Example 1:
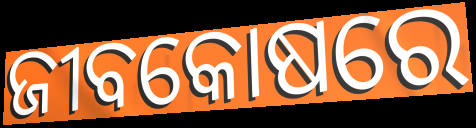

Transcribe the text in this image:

ଜୀବକୋଷରେ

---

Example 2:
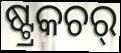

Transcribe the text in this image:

ଷ୍ଟ୍ରକଚର୍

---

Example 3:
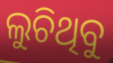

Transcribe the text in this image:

ଲୁଚିଥିବୁ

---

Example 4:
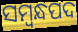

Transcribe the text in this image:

ସମ୍ବନ୍ଧପଦ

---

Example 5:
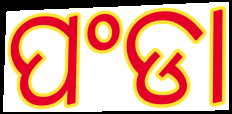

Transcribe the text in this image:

ପଂଡା